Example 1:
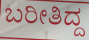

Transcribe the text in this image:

ಬರೀತಿದ್ದ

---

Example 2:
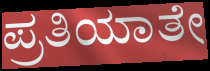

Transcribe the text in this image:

ಪ್ರತಿಯಾತೇ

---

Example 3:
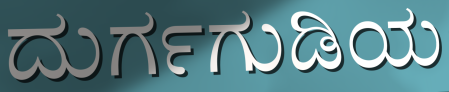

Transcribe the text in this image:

ದುರ್ಗಗುಡಿಯ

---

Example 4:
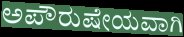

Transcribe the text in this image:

ಅಪೌರುಷೇಯವಾಗಿ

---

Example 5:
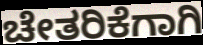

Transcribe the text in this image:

ಚೇತರಿಕೆಗಾಗಿ